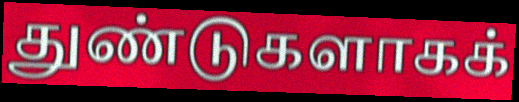
துண்டுகளாகக்